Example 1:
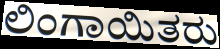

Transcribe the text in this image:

ಲಿಂಗಾಯಿತರು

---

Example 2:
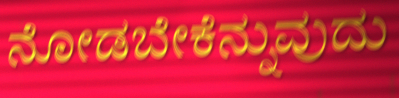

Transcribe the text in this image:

ನೋಡಬೇಕೆನ್ನುವುದು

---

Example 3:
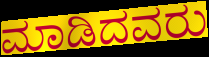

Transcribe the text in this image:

ಮಾಡಿದವರು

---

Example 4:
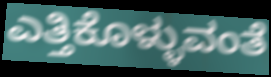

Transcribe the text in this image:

ಎತ್ತಿಕೊಳ್ಳುವಂತೆ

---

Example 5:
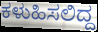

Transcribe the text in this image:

ಕಳುಹಿಸಲಿದ್ದ